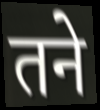
तने